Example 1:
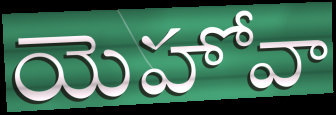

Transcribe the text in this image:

యెహోవా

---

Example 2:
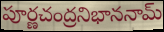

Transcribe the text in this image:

పూర్ణచంద్రనిభాననామ్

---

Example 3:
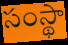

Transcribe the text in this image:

సంస్థా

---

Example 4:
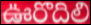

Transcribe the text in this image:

ఊరొదిలి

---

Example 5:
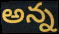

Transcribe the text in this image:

అన్న